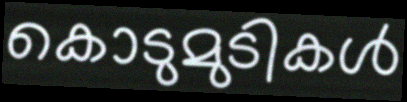
കൊടുമുടികൾ